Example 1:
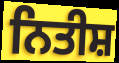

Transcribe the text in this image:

ਨਿਤੀਸ਼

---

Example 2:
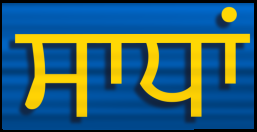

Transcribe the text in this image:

ਸਾਧਾਂ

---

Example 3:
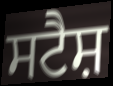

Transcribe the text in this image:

ਸਟੈਸ਼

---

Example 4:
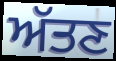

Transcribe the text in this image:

ਅੱਤਣ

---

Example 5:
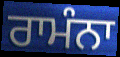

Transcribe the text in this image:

ਰਾਮੰਨਾ